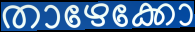
താഴേക്കോ